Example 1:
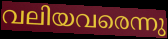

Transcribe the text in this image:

വലിയവരെന്നു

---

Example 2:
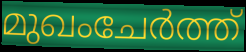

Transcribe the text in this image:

മുഖംചേർത്ത്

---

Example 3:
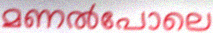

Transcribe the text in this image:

മണൽപോലെ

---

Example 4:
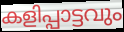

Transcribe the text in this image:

കളിപ്പാട്ടവും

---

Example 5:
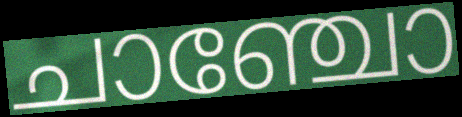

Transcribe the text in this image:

ചാഞ്ചോ